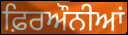
ਫ਼ਿਰਔਨੀਆਂ